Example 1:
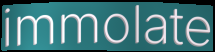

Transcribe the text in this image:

immolate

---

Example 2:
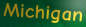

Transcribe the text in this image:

Michigan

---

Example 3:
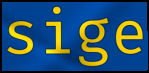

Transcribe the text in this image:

sige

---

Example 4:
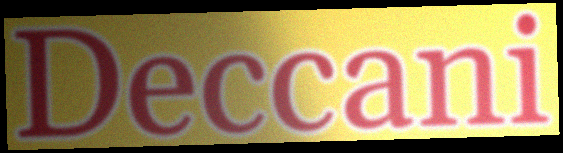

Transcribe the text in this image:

Deccani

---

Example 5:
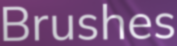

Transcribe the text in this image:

Brushes